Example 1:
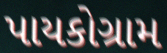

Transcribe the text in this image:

પાયકોગ્રામ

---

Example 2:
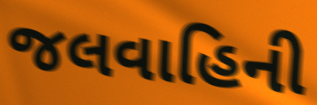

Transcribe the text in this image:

જલવાહિની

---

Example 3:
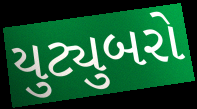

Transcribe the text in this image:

યુટ્યુબરો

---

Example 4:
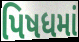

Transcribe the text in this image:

પિષધમાં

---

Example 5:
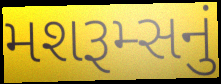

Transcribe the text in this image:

મશરૂમ્સનું